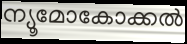
ന്യൂമോകോക്കൽ